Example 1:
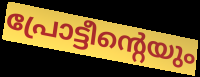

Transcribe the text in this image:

പ്രോട്ടീന്റെയും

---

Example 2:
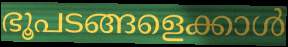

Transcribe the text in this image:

ഭൂപടങ്ങളെക്കാൾ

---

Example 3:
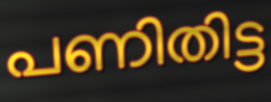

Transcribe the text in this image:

പണിതിട്ട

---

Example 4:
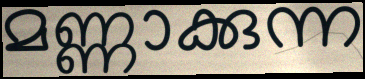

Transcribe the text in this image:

മണ്ണാക്കുന്ന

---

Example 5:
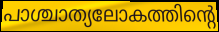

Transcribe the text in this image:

പാശ്ചാത്യലോകത്തിന്റെ